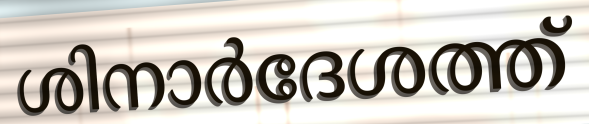
ശിനാർദേശത്ത്